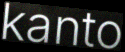
kanto